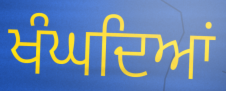
ਖੰਘਦਿਆਂ